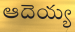
ఆదెయ్య